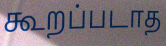
கூறப்படாத